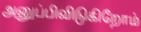
அனுப்பிவிடுகிறோம்